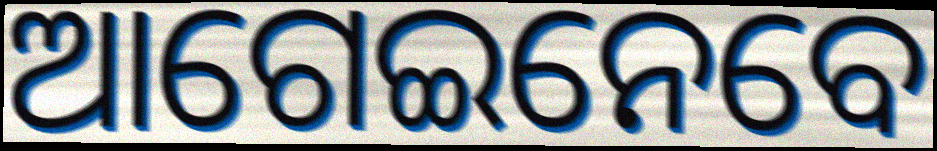
ଆଗେଇନେବେ